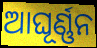
ଆଘୂର୍ଣ୍ଣନ